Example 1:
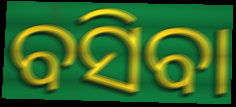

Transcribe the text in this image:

ବସିବା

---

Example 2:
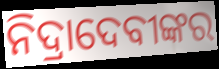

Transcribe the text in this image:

ନିଦ୍ରାଦେବୀଙ୍କର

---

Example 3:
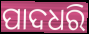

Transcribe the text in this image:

ପାଦଧରି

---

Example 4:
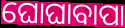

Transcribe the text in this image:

ଘୋଘାବାପା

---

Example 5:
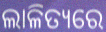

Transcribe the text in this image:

ଲାଳିତ୍ୟରେ